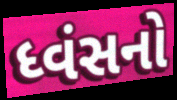
ધ્વંસનો